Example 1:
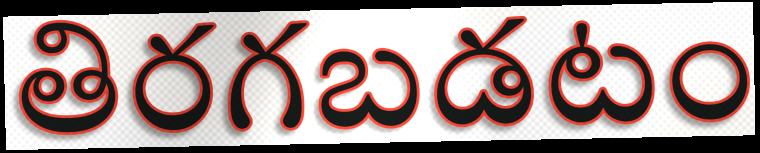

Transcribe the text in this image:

తిరగబడటం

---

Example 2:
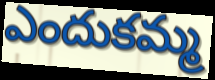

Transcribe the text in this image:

ఎందుకమ్మ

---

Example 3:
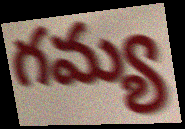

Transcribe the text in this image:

గమ్య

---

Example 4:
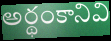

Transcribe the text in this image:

అర్థంకానివి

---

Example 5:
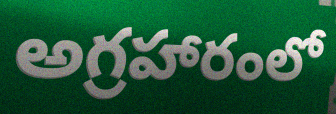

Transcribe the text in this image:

అగ్రహారంలో